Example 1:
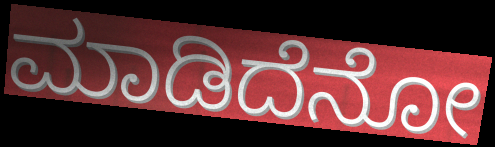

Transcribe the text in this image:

ಮಾಡಿದೆನೋ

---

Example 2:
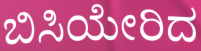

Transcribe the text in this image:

ಬಿಸಿಯೇರಿದ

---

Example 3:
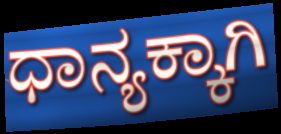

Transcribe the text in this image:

ಧಾನ್ಯಕ್ಕಾಗಿ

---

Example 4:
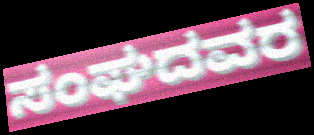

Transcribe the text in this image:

ಸಂಘದವರ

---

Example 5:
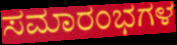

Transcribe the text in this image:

ಸಮಾರಂಭಗಳ